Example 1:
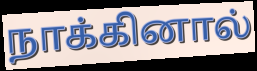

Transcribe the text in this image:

நாக்கினால்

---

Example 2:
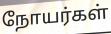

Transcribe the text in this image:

நோயர்கள்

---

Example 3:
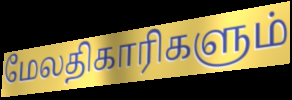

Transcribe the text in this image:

மேலதிகாரிகளும்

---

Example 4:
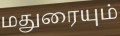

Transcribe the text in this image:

மதுரையும்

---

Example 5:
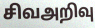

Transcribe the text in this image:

சிவஅறிவு